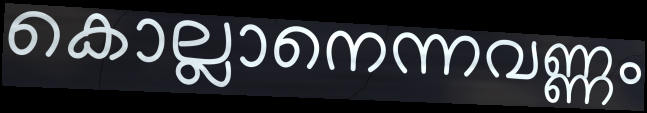
കൊല്ലാനെന്നവണ്ണം